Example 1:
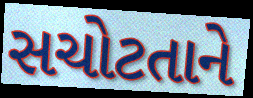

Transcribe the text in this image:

સચોટતાને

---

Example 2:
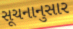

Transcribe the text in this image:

સૂચનાનુસાર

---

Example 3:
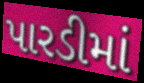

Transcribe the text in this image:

પારડીમાં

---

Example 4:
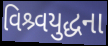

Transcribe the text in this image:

વિશ્ર્વયુદ્ધના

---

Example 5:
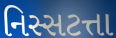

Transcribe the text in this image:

નિસ્સટત્તા